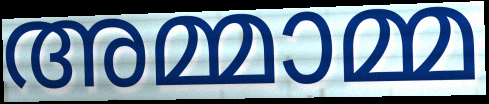
അമ്മാമ്മ